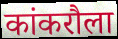
कांकरौला